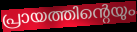
പ്രായത്തിന്റെയും